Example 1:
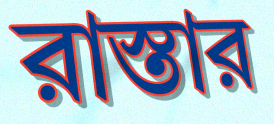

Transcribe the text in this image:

রাস্তার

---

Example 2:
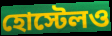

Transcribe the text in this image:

হোস্টেলও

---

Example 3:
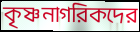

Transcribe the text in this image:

কৃষ্ণনাগরিকদের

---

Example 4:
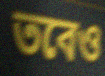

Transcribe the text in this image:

তবেও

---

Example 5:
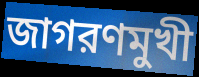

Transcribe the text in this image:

জাগরণমুখী